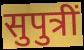
सुपुत्रीं